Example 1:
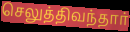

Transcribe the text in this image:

செலுத்திவந்தார்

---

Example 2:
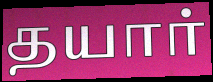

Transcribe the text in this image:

தயார்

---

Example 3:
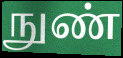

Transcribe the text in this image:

நுண்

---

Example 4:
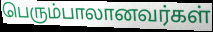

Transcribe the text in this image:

பெரும்பாலானவர்கள்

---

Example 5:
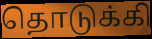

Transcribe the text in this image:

தொடுக்கி